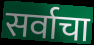
सर्वाचा